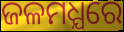
ଜଳମଧ୍ଯରେ